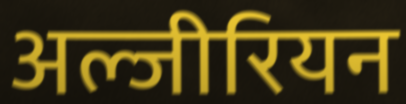
अल्जीरियन